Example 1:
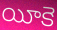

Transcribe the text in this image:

యీకె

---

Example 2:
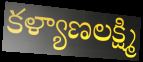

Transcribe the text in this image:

కళ్యాణలక్ష్మి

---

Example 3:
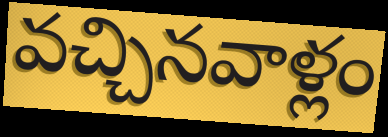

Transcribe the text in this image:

వచ్చినవాళ్లం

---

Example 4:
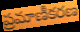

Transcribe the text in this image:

ప్రమాణీకరణ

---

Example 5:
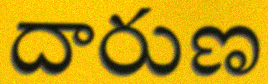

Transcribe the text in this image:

దారుణ